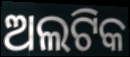
ଅଲଟିକ